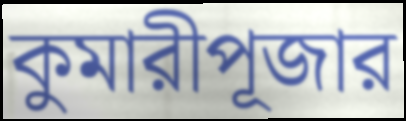
কুমারীপূজার